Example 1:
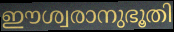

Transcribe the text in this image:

ഈശ്വരാനുഭൂതി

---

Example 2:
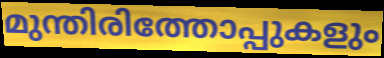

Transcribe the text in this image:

മുന്തിരിത്തോപ്പുകളും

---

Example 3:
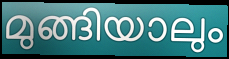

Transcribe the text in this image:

മുങ്ങിയാലും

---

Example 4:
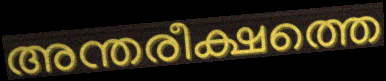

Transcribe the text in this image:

അന്തരീക്ഷത്തെ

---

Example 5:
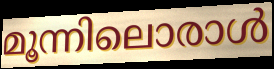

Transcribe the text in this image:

മൂന്നിലൊരാൾ